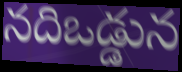
నదిఒడ్డున